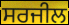
ਸਰਜੀਲ